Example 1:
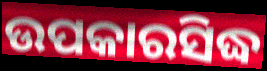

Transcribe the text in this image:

ଉପକାରସିଦ୍ଧ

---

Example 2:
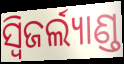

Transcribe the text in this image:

ସ୍ୱିଜର୍ଲ୍ୟାଣ୍ଡ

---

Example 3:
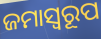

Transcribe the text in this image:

ଜମାସ୍ବରୂପ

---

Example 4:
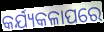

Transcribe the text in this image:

କର୍ଯ୍ୟକଳାପରେ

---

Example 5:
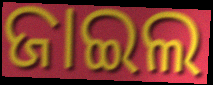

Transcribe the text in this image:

ଜାଇଲ